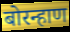
बोरन्हाण